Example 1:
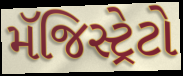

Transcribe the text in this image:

મૅજિસ્ટ્રેટો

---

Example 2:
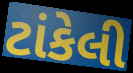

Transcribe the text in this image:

ટાંકેલી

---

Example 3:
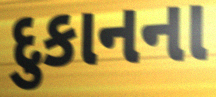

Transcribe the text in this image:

દુકાનના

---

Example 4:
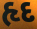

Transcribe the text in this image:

હૃદ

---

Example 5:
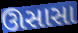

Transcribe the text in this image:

ઊસાસા